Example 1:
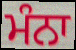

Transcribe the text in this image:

ਮੰਨਾ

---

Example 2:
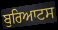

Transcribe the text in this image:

ਬੁਰਿਆਟਸ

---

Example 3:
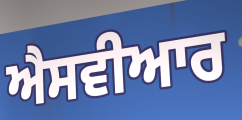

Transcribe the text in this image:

ਐਸਵੀਆਰ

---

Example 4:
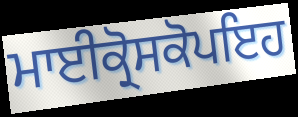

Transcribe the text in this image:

ਮਾਈਕ੍ਰੋਸਕੋਪਇਹ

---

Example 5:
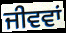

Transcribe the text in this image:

ਜੀਵਵਾਂ